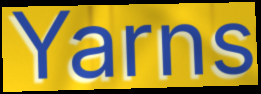
Yarns